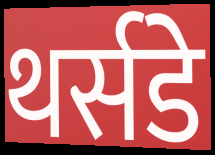
थर्सडे